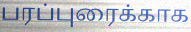
பரப்புரைக்காக